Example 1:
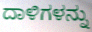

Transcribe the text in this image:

ದಾಳಿಗಳನ್ನು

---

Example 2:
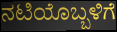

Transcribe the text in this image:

ನಟಿಯೊಬ್ಬಳಿಗೆ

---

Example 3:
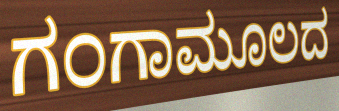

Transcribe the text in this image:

ಗಂಗಾಮೂಲದ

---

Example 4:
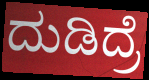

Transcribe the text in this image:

ದುಡಿದ್ರೆ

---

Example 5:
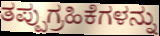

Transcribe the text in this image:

ತಪ್ಪುಗ್ರಹಿಕೆಗಳನ್ನು